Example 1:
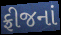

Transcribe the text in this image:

ફ્રીજનાં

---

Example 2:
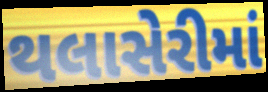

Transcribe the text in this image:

થલાસેરીમાં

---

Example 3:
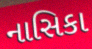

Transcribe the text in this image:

નાસિકા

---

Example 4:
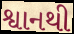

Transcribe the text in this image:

શ્વાનથી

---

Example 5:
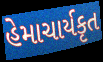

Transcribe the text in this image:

હેમાચાર્યકૃત